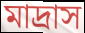
মাদ্রাস